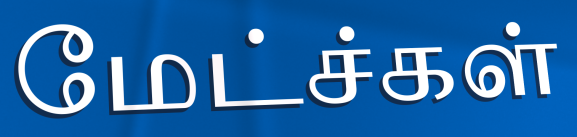
மேட்ச்கள்